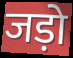
जड़ो